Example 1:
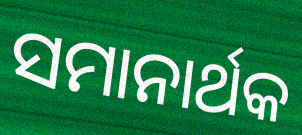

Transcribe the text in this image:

ସମାନାର୍ଥକ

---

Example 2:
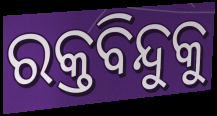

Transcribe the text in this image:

ରକ୍ତବିନ୍ଦୁକୁ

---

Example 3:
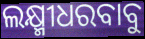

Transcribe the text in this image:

ଲକ୍ଷ୍ମୀଧରବାବୁ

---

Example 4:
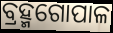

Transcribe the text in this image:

ବ୍ରହ୍ମଗୋପାଳ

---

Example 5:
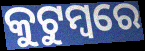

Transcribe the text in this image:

କୁଟୁମ୍ଵରେ